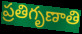
ప్రతిగృణాతి